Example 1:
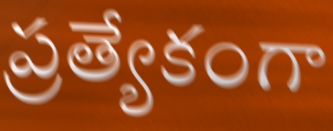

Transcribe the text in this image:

ప్రత్యేకంగా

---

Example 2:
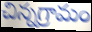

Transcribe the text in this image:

చిన్నగ్రామం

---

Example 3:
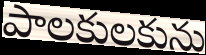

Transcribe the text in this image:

పాలకులకును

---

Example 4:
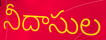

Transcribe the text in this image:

నీదాసుల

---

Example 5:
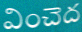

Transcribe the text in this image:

వించెద